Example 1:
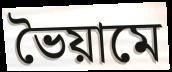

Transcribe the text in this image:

ভৈয়ামে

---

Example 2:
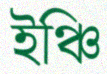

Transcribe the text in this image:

ইঞ্চি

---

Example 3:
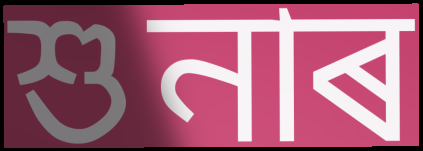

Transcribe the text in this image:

শুনাৰ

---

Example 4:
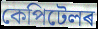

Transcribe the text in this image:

কেপিটেলৰ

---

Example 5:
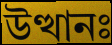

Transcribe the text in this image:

উত্থানঃ